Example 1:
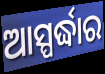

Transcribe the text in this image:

ଆସ୍ପର୍ଦ୍ଧାର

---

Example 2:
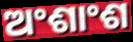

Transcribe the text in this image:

ଅଂଶାଂଶ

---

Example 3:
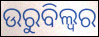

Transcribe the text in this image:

ଉରୁବିଲ୍ଵର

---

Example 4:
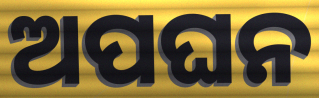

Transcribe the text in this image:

ଅପଘନ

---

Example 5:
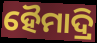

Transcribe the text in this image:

ହୈମାଦ୍ରି